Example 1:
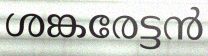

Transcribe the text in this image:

ശങ്കരേട്ടൻ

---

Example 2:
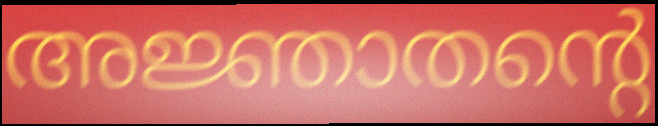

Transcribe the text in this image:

അജ്ഞാതന്റെ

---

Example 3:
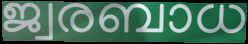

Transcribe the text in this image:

ജ്വരബാധ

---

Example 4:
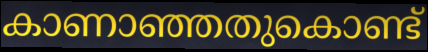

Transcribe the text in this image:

കാണാഞ്ഞതുകൊണ്ട്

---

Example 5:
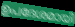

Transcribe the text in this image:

ഉപദേശമായി